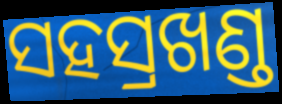
ସହସ୍ରଖଣ୍ଡ